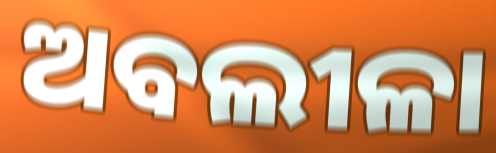
ଅବଲୀଳା